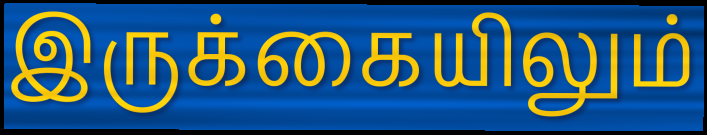
இருக்கையிலும்